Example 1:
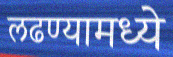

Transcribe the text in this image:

लढण्यामध्ये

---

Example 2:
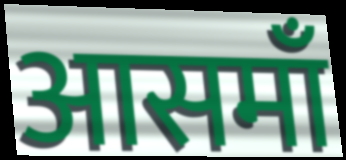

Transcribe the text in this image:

आसमाँ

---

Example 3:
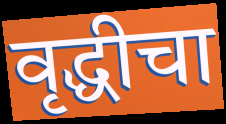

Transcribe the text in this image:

वृद्धीचा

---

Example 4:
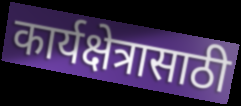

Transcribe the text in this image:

कार्यक्षेत्रासाठी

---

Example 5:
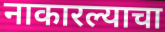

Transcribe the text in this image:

नाकारल्याचा